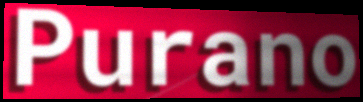
Purano